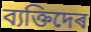
ব্যক্তিদেৰ